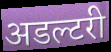
अडल्टरी